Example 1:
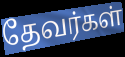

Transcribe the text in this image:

தேவர்கள்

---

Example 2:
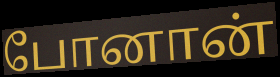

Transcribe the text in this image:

போனான்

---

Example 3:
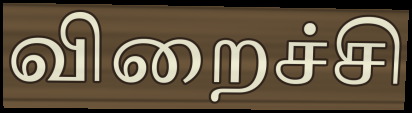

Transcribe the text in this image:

விறைச்சி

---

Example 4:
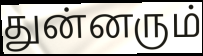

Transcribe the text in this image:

துன்னரும்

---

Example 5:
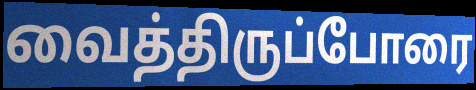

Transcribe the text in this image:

வைத்திருப்போரை